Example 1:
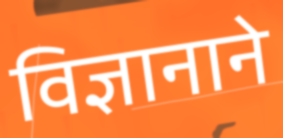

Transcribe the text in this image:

विज्ञानाने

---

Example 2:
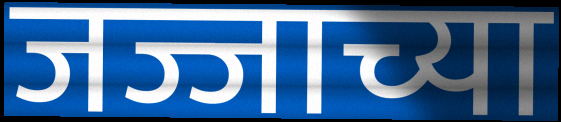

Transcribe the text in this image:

जज्जाच्या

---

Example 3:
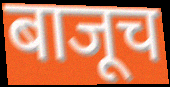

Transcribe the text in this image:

बाजूच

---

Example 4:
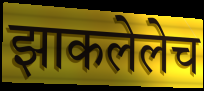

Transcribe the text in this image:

झाकलेलेच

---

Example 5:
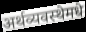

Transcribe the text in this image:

अर्थव्यवस्थेमधे